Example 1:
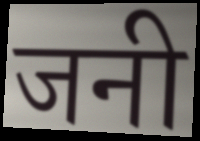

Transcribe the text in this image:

जनी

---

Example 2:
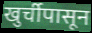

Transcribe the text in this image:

खुर्चीपासून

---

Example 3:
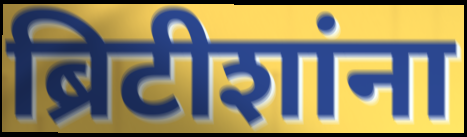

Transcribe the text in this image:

ब्रिटीशांना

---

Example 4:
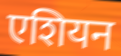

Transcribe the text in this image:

एशियन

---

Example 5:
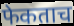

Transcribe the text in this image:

फेकताच